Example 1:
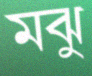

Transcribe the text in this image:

মঝু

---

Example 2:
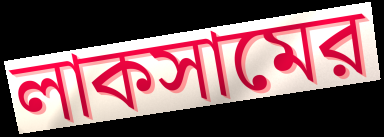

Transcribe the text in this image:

লাকসামের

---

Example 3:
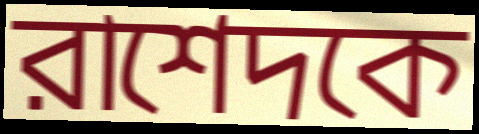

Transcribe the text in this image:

রাশেদকে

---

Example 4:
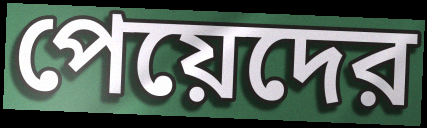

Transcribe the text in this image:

পেয়েদের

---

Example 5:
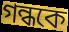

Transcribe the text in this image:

গন্ধকে